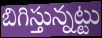
బిగిస్తున్నట్టు